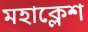
মহাক্লেশ